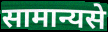
सामान्यसे